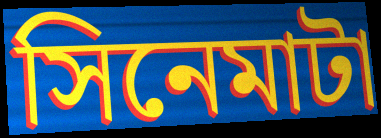
সিনেমাটা